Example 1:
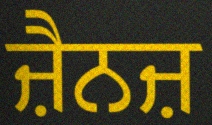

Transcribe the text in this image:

ਜ਼ੈਨਜ਼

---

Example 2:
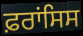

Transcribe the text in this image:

ਫ਼ਰਾਂਸਿਸ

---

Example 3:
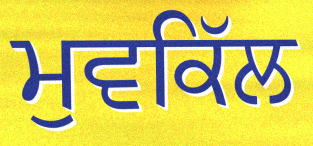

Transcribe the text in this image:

ਮੁਵਕਿੱਲ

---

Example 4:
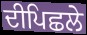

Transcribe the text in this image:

ਦੀਪਿਛਲੇ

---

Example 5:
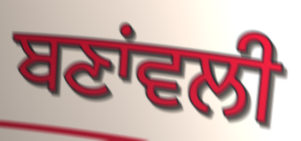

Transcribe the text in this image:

ਬਣਾਂਵਲੀ